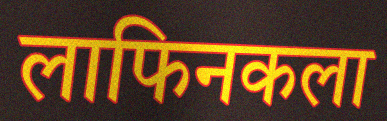
लाफिनकला